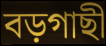
বড়গাছী